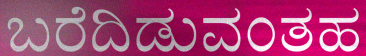
ಬರೆದಿಡುವಂತಹ